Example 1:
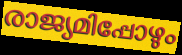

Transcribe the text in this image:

രാജ്യമിപ്പോഴും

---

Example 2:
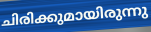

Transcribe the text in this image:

ചിരിക്കുമായിരുന്നു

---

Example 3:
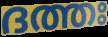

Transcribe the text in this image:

ദത്തഃ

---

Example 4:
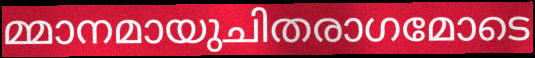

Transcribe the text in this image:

മ്മാനമായുചിതരാഗമോടെ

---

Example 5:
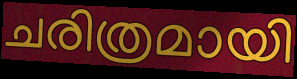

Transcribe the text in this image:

ചരിത്രമായി